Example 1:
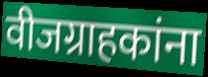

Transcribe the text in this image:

वीजग्राहकांना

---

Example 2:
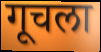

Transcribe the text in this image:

गूचला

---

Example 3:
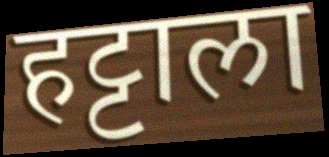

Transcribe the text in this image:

हट्टाला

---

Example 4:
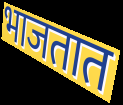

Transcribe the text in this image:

भाजतात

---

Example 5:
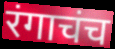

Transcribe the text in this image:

रंगाचंच